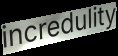
incredulity